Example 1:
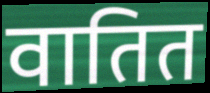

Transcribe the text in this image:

वातित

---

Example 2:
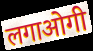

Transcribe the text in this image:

लगाओगी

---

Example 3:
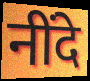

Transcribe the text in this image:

नींदे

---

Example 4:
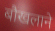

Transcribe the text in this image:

बौखलाने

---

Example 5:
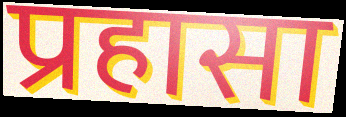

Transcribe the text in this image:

प्रहासा